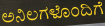
ಅನಿಲಗಳೊಂದಿಗೆ